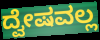
ದ್ವೇಷವಲ್ಲ